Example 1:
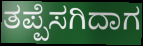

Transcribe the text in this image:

ತಪ್ಪೆಸಗಿದಾಗ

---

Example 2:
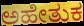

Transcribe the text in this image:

ಅಹೇತುಕ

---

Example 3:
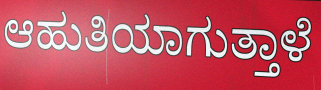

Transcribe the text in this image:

ಆಹುತಿಯಾಗುತ್ತಾಳೆ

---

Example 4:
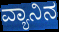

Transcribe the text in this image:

ವ್ಯಾನಿನ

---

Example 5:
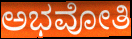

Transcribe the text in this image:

ಅಭವೋತಿ